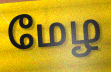
மேழ